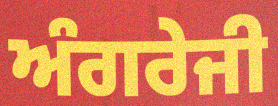
ਅੰਗਰੇਜੀ